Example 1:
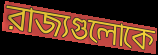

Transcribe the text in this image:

রাজ্যগুলোকে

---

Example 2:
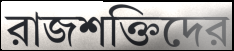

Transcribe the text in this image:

রাজশক্তিদের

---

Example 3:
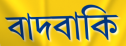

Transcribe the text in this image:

বাদবাকি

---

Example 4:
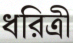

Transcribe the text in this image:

ধরিত্রী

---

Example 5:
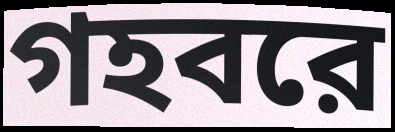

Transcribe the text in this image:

গহবরে